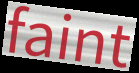
faint